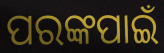
ପରଙ୍କପାଇଁ